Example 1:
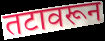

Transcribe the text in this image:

तटावरून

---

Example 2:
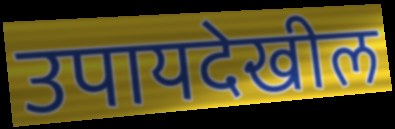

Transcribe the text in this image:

उपायदेखील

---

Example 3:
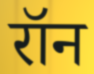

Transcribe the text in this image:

रॉन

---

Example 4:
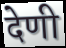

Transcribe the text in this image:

देणी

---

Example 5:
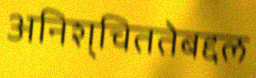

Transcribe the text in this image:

अनिश्चिततेबद्दल